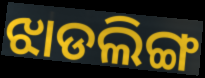
ଝାଡଲିଙ୍ଗ